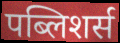
पब्लिशर्स